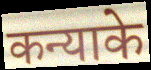
कन्याके